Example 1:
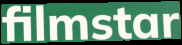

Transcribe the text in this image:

filmstar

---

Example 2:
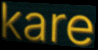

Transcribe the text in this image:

kare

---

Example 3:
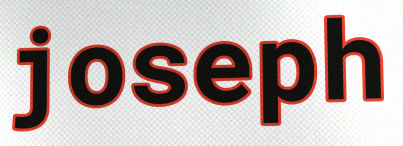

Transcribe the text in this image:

joseph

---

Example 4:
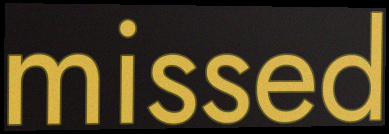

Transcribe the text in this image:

missed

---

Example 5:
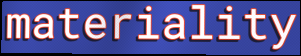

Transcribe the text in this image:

materiality